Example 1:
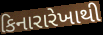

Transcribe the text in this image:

કિનારારેખાથી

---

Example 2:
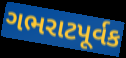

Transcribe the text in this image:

ગભરાટપૂર્વક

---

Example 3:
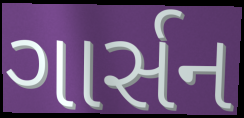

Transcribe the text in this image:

ગાર્સન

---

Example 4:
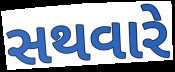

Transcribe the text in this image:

સથવારે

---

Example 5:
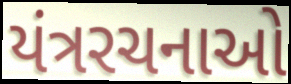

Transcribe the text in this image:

યંત્રરચનાઓ